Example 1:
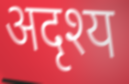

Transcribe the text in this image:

अदृश्य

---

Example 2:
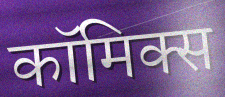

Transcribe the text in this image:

कॉमिक्स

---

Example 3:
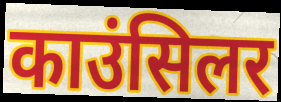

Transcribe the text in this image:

काउंसिलर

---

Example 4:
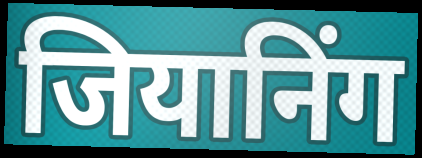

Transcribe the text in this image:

जियानिंग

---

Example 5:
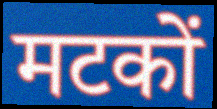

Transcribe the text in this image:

मटकों